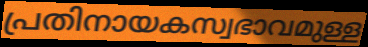
പ്രതിനായകസ്വഭാവമുള്ള